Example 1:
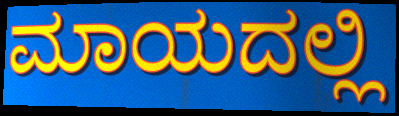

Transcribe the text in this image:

ಮಾಯದಲ್ಲಿ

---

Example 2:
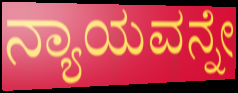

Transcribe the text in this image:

ನ್ಯಾಯವನ್ನೇ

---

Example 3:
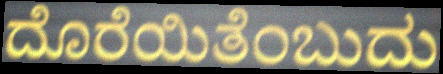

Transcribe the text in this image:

ದೊರೆಯಿತೆಂಬುದು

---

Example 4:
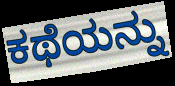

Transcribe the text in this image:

ಕಥೆಯನ್ನು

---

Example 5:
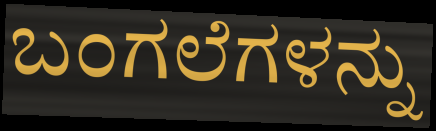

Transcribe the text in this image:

ಬಂಗಲೆಗಳನ್ನು